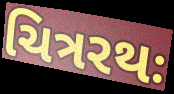
ચિત્રરથઃ